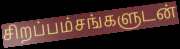
சிறப்பம்சங்களுடன்